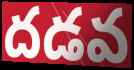
దడవ